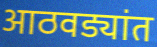
आठवड्यांत